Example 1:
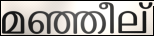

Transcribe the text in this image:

മഞ്ഞീല്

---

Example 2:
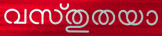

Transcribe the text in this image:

വസ്തുതയാ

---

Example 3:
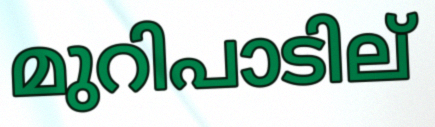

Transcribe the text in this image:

മുറിപാടില്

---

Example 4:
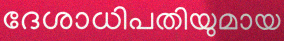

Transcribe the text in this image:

ദേശാധിപതിയുമായ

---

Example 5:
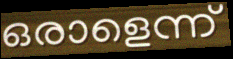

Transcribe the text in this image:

ഒരാളെന്ന്